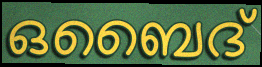
ഒബൈദ്